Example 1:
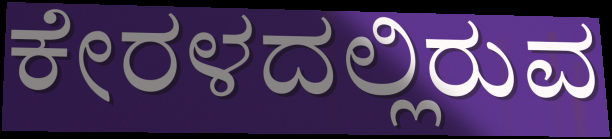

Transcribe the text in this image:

ಕೇರಳದಲ್ಲಿರುವ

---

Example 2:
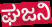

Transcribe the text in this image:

ಘಜನಿ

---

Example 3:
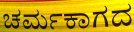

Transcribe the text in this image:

ಚರ್ಮಕಾಗದ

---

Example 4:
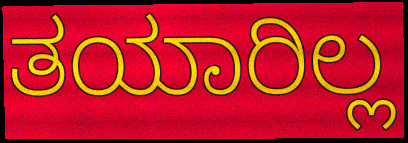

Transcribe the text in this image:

ತಯಾರಿಲ್ಲ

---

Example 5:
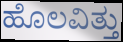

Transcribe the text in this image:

ಹೊಲವಿತ್ತು